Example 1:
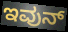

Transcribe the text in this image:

ಇವುನ್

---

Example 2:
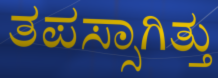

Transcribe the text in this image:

ತಪಸ್ಸಾಗಿತ್ತು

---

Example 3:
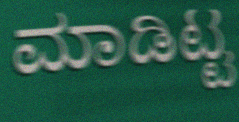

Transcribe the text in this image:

ಮಾಡಿಟ್ಟ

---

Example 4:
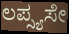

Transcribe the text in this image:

ಲಪ್ಸ್ಯಸೇ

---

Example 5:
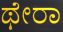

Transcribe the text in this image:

ಥೇರಾ